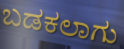
ಬಡಕಲಾಗು